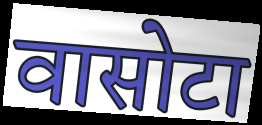
वासोटा